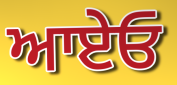
ਆਏਓ